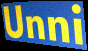
Unni